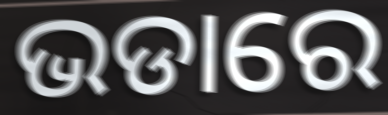
ଭଡାରେ